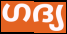
ഗദ്യ